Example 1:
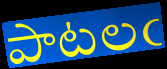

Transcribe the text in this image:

పాటలఁ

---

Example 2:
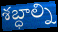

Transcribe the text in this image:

శబ్ధాల్ని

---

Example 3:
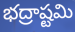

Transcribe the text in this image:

భద్రాష్టమి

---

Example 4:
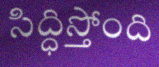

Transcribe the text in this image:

సిద్ధిస్తోంది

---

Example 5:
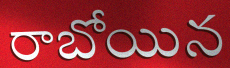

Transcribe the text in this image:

రాబోయిన